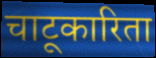
चाटूकारिता